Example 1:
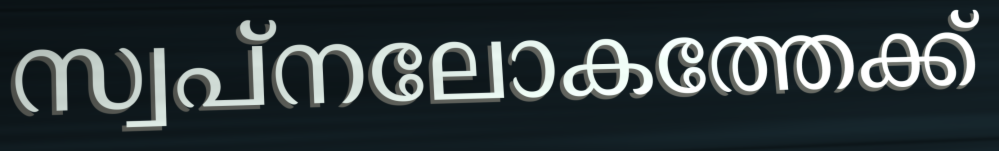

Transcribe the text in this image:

സ്വപ്നലോകത്തേക്ക്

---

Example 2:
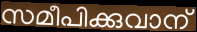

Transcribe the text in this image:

സമീപിക്കുവാന്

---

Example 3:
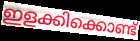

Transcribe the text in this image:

ഇളക്കിക്കൊണ്ട്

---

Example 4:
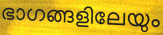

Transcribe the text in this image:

ഭാഗങ്ങളിലേയും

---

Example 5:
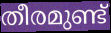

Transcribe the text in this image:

തീരമുണ്ട്